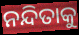
ନନ୍ଦିତାକୁ